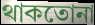
থাকতোনা